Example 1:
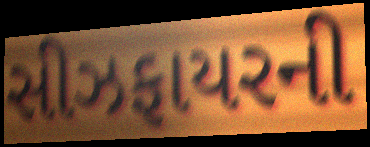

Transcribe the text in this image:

સીઝફાયરની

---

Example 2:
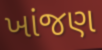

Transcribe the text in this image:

ખાંજણ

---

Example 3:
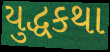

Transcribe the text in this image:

યુદ્ધકથા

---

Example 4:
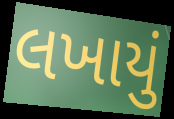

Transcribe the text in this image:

લખાયું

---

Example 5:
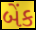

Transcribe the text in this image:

બેંક